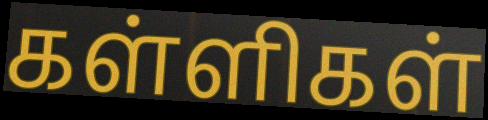
கள்ளிகள்